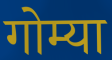
गोम्या